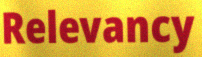
Relevancy